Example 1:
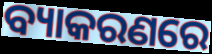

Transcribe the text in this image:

ବ୍ୟାକରଣରେ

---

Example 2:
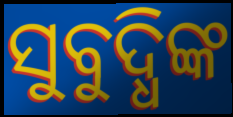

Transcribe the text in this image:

ସୁବୁଦ୍ଧିଙ୍କ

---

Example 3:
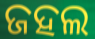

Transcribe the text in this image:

ଜହଲ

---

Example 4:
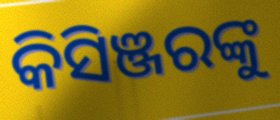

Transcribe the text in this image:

କିସିଞ୍ଜରଙ୍କୁ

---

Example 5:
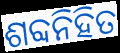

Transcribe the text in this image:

ଶବ୍ଦନିହିତ